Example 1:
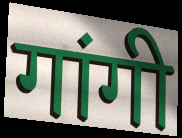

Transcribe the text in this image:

गांगी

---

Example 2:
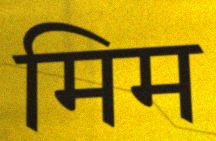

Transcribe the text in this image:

मिम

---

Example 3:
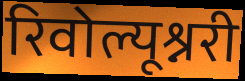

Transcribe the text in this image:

रिवोल्यूश्नरी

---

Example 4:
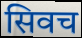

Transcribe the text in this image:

सिवच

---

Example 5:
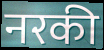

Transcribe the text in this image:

नरकी